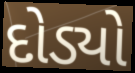
દોડ્યો